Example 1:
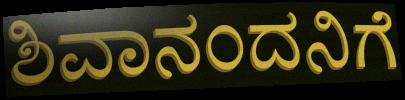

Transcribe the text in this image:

ಶಿವಾನಂದನಿಗೆ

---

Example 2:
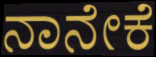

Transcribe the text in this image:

ನಾನೇಕೆ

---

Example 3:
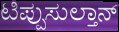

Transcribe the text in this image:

ಟಿಪ್ಪುಸುಲ್ತಾನ್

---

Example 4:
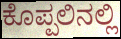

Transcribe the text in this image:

ಕೊಪ್ಪಲಿನಲ್ಲಿ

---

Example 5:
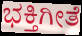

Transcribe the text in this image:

ಭಕ್ತಿಗೀತೆ